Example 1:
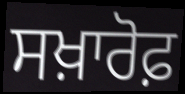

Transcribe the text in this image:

ਸਖ਼ਾਰੋਫ਼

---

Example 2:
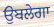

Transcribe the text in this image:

ਉਬਲੇਗਾ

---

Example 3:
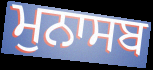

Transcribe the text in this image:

ਮੁਨਾਸਬ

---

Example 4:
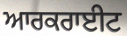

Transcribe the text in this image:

ਆਰਕਰਾਈਟ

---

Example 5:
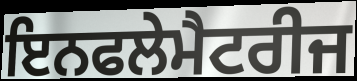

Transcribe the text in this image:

ਇਨਫਲੇਮੈਟਰੀਜ